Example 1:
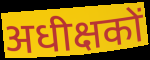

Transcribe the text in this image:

अधीक्षकों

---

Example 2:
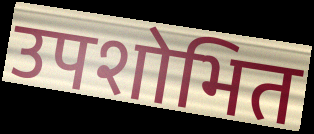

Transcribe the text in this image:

उपशोभित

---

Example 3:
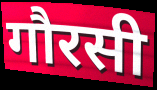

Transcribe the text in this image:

गौरसी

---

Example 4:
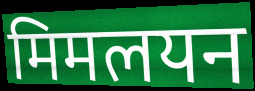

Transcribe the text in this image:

मिमलयन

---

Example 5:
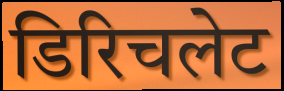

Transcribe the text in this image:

डिरिचलेट